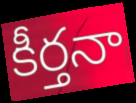
కీర్తనా